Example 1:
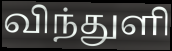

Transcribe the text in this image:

விந்துளி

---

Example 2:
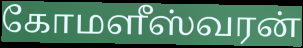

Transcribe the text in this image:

கோமளீஸ்வரன்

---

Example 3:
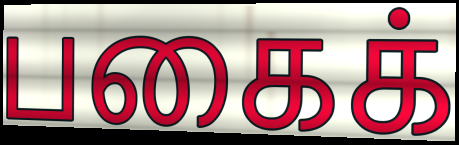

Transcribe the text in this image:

பகைக்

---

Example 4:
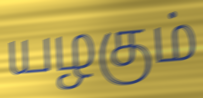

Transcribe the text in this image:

யழகும்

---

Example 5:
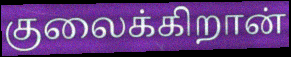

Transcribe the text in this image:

குலைக்கிறான்